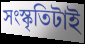
সংস্কৃতিটাই